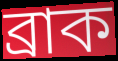
ব্রাক